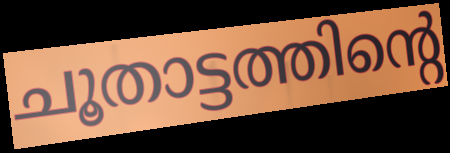
ചൂതാട്ടത്തിന്റെ